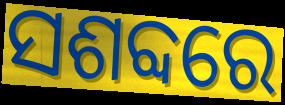
ସଶବ୍ଦରେ